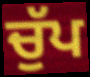
ਚੁੱਪ